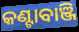
କଣ୍ଟାବାଞ୍ଜି